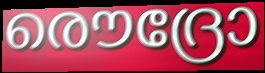
രൌദ്രോ